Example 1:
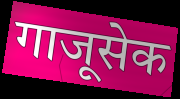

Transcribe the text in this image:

गाजूसेक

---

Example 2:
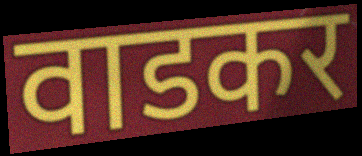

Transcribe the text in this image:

वाडकर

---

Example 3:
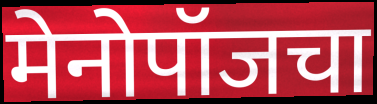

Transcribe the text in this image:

मेनोपॉजचा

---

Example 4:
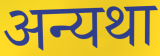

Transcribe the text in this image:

अन्यथा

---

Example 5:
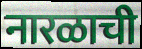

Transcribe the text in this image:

नारळाची